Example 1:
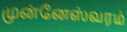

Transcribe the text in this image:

முன்னேஸ்வரம்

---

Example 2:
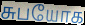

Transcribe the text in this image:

சுபயோக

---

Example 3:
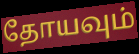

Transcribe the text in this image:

தோயவும்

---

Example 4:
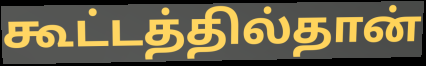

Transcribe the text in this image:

கூட்டத்தில்தான்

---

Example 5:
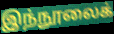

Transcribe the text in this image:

இந்நூலைக்